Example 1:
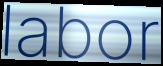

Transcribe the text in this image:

labor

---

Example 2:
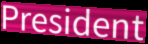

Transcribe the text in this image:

President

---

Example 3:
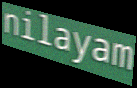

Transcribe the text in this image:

nilayam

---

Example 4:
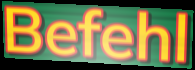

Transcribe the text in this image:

Befehl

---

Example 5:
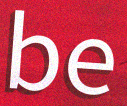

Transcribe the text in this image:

be